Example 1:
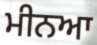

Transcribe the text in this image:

ਮੀਨਆ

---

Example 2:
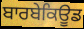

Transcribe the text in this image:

ਬਾਰਬੇਕਿਊਡ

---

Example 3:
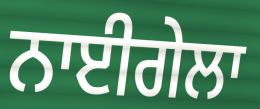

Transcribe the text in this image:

ਨਾਈਗੇਲਾ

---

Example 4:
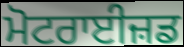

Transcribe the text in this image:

ਮੋਟਰਾਈਜ਼ਡ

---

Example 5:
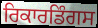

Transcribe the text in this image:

ਰਿਕਾਰਡਿੰਗਸ